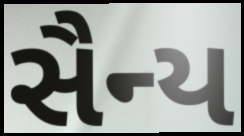
સૈન્ય